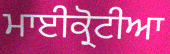
ਮਾਈਕ੍ਰੋਟੀਆ